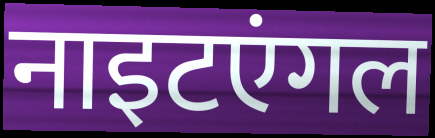
नाइटएंगल